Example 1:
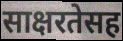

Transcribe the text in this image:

साक्षरतेसह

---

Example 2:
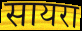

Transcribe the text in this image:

सायरा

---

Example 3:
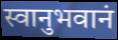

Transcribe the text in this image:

स्वानुभवानं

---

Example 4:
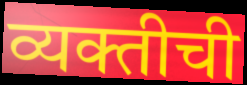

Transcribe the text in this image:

व्यक्तीची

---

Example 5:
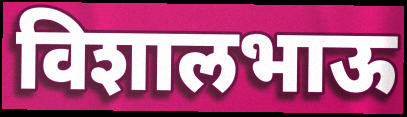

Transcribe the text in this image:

विशालभाऊ